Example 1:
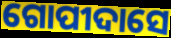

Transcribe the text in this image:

ଗୋପୀଦାସେ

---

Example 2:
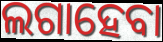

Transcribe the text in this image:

ଲଗାହେବା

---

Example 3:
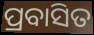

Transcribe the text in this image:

ପ୍ରବାସିତ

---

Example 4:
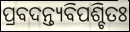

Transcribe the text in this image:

ପ୍ରବଦନ୍ତ୍ୟବିପଶ୍ଚିତଃ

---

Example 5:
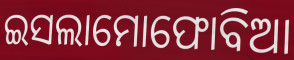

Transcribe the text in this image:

ଇସଲାମୋଫୋବିଆ